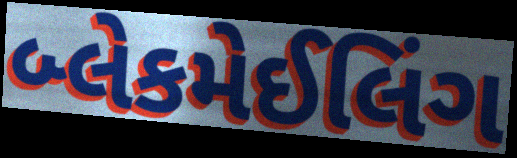
બ્લેકમેઈલિંગ